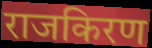
राजकिरण